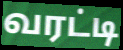
வரட்டி